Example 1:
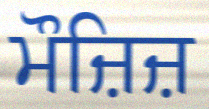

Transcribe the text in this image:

ਮੌਜ਼ਿਜ਼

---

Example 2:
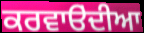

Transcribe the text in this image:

ਕਰਵਾੳਂਦੀਆ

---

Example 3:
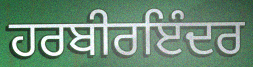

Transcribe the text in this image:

ਹਰਬੀਰਇੰਦਰ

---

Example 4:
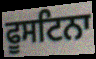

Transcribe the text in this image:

ਫੂਸਟਿਨਾ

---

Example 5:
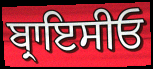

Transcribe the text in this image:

ਬ੍ਰਾਇਸੀਓ